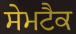
ਸੇਮਟੈਕ